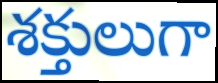
శక్తులుగా